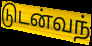
டுடன்வந்